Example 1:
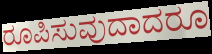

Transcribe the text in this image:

ರೂಪಿಸುವುದಾದರೂ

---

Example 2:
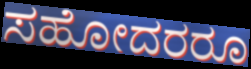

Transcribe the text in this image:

ಸಹೋದರರೂ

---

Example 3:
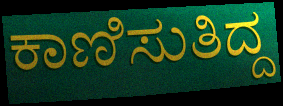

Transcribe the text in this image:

ಕಾಣಿಸುತಿದ್ದ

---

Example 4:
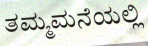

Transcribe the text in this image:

ತಮ್ಮಮನೆಯಲ್ಲಿ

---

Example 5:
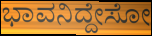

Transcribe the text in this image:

ಭಾವನಿದ್ದೇಸೋ